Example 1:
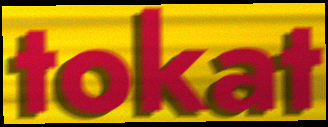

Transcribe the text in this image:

tokat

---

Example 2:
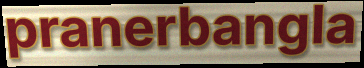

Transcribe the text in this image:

pranerbangla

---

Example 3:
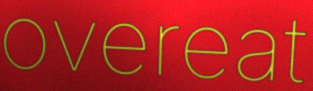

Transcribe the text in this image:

overeat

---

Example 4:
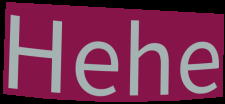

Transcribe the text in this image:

Hehe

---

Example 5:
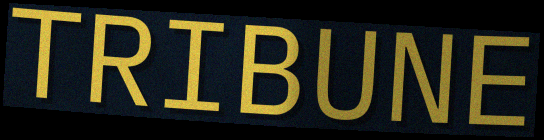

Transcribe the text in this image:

TRIBUNE